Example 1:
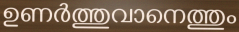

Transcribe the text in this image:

ഉണർത്തുവാനെത്തും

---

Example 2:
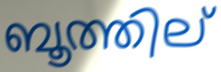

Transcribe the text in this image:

ബൂത്തില്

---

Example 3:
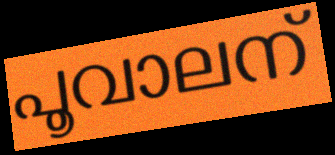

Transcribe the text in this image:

പൂവാലന്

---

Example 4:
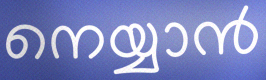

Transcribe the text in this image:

നെയ്യാൻ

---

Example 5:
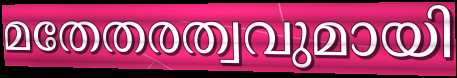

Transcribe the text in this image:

മതേതരത്വവുമായി